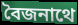
বৈজনাথে